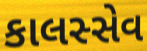
કાલસ્સેવ